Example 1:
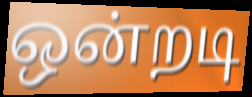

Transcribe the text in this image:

ஒன்றடி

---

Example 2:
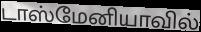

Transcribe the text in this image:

டாஸ்மேனியாவில்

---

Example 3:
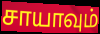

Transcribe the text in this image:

சாயாவும்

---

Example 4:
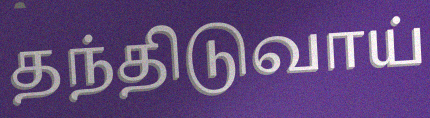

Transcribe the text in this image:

தந்திடுவாய்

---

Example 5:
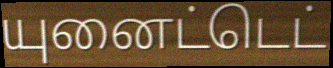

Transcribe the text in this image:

யுனைட்டெட்